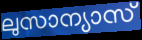
ലുസാന്യാസ്